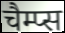
चैम्प्स